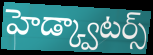
హెడ్క్వాటర్స్